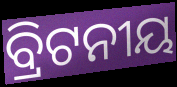
ବ୍ରିଟନୀୟ